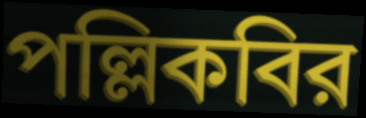
পল্লিকবির